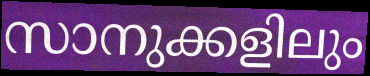
സാനുക്കളിലും